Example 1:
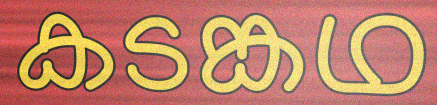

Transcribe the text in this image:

കടങ്കഥ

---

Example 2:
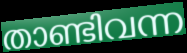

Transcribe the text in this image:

താണ്ടിവന്ന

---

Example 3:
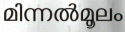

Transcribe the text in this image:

മിന്നൽമൂലം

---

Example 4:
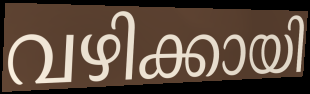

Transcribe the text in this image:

വഴിക്കായി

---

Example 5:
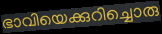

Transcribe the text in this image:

ഭാവിയെക്കുറിച്ചൊരു